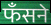
फँसने